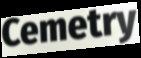
Cemetry